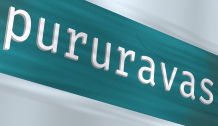
pururavas